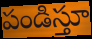
పండిస్తూ